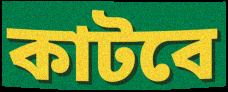
কাটবে